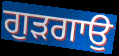
ਗੁੜਗਾਉ